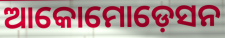
ଆକୋମୋଡ଼େସନ